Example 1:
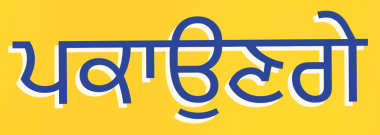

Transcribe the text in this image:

ਪਕਾਉਣਗੇ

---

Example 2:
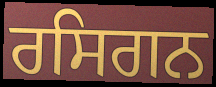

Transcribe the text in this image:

ਰਸਿਗਨ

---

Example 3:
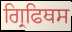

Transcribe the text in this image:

ਗ੍ਰਿਫਿਥਸ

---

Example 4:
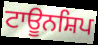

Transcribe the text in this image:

ਟਾਊਨਸ਼ਿਪ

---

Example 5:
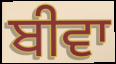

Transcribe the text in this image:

ਬੀਵਾ